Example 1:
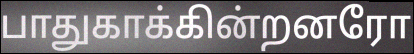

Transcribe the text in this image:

பாதுகாக்கின்றனரோ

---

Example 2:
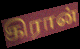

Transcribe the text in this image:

கிரான்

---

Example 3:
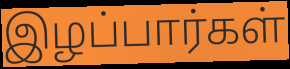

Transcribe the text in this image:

இழப்பார்கள்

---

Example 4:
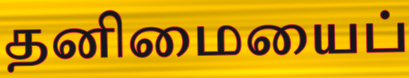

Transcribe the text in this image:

தனிமையைப்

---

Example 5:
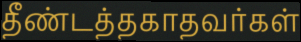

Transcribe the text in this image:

தீண்டத்தகாதவர்கள்